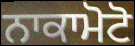
ਨਾਕਾਮੋਟੋ